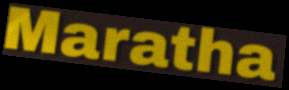
Maratha